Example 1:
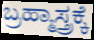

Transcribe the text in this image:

ಬ್ರಹ್ಮಾಸ್ತ್ರಕ್ಕೆ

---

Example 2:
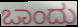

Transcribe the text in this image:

ಒಾಂದು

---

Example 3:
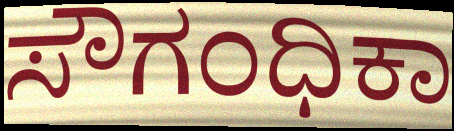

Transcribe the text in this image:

ಸೌಗಂಧಿಕಾ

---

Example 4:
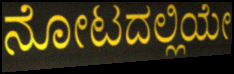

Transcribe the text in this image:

ನೋಟದಲ್ಲಿಯೇ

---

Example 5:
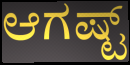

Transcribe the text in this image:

ಆಗಷ್ಟ್